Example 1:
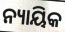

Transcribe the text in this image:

ନ୍ୟାୟିକ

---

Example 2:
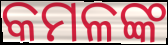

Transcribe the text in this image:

କମଳଙ୍କ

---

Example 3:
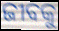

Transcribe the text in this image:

ଜୀବକୁ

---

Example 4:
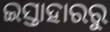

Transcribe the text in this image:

ଇସ୍ତାହାରରୁ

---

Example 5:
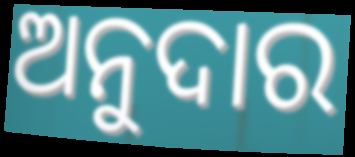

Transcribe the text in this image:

ଅନୁଦାର